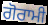
ਗੋਰਾਮੀ